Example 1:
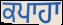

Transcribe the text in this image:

ਕਪਾਹਾ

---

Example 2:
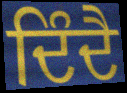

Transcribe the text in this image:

ਦਿੰਦੈ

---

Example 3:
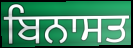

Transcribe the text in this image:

ਬਿਨਾਸਤ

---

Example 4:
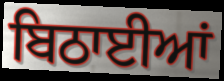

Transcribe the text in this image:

ਬਿਠਾਈਆਂ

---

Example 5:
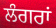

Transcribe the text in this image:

ਲੰਗਰਾਂ